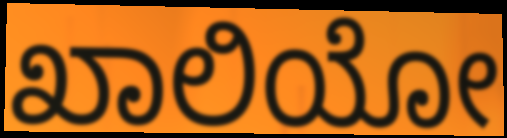
ಖಾಲಿಯೋ